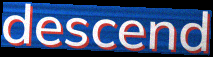
descend